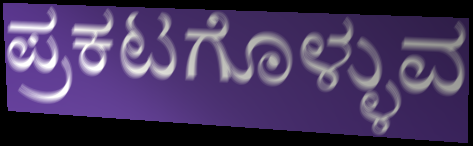
ಪ್ರಕಟಗೊಳ್ಳುವ